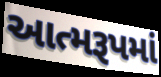
આત્મરૂપમાં